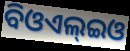
ବିଓଏଲ୍ଇଓ